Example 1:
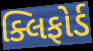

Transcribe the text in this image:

ક્લિફોર્ડ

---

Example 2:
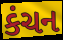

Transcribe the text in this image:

કંચન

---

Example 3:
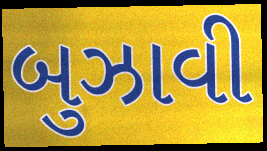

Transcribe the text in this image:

બુઝાવી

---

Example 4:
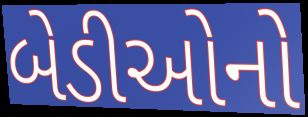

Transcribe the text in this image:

બેડીઓનો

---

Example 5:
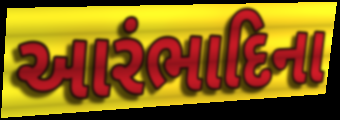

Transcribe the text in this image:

આરંભાદિના